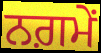
ਨਗ਼ਮੇਂ